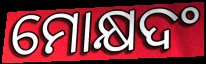
ମୋକ୍ଷଦଂ